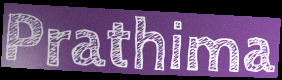
Prathima